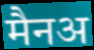
मैनअ